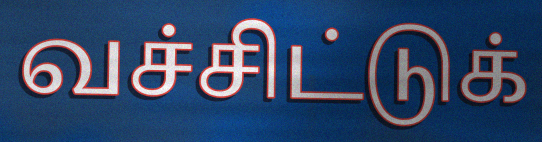
வச்சிட்டுக்